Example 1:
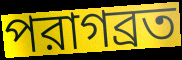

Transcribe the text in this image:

পরাগব্রত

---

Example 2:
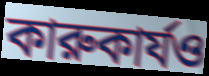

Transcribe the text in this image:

কারুকার্যও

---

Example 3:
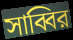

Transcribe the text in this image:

সাব্বির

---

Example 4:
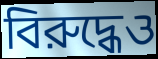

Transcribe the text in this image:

বিরুদ্ধেও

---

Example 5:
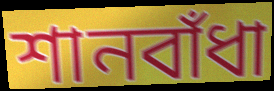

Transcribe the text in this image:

শানবাঁধা